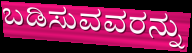
ಬಡಿಸುವವರನ್ನು